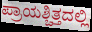
ಪ್ರಾಯಶ್ಚಿತ್ತದಲ್ಲಿ